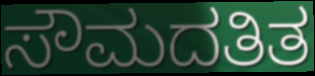
ಸೌಮದತಿತ